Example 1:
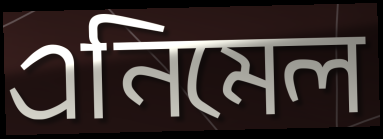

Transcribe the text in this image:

এনিমেল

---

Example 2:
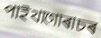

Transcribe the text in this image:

পাইথাগোৰাচৰ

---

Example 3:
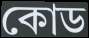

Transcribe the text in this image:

কোড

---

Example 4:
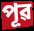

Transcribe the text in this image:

পূৱ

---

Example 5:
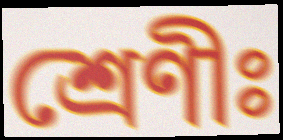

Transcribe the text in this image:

শ্ৰেণীঃ